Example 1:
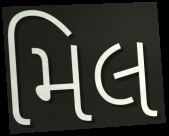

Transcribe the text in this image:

મિલ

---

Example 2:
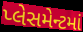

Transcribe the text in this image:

પ્લેસમેન્ટમાં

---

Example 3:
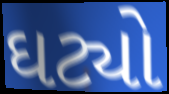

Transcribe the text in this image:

ઘટ્યો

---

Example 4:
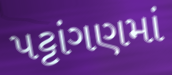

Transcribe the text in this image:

પટ્ટાંગણમાં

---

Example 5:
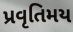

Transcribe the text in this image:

પ્રવૃતિમય